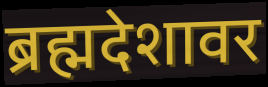
ब्रह्मदेशावर